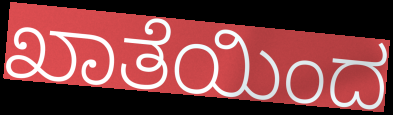
ಖಾತೆಯಿಂದ